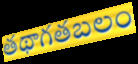
తథాగతబలం